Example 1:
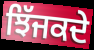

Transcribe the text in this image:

ਝਿੱਜਕਦੇ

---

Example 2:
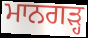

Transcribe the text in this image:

ਮਾਨਗੜ੍ਹ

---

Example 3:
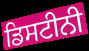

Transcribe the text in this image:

ਡਿਸਟੀਨੀ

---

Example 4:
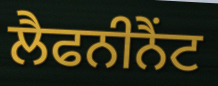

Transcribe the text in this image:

ਲੈਫਨੀਨੈਂਟ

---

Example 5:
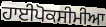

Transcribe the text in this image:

ਹਾਈਪੋਕਸੀਮੀਆ